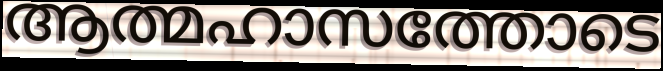
ആത്മഹാസത്തോടെ